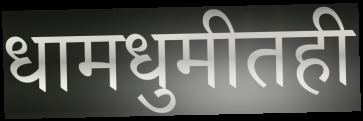
धामधुमीतही